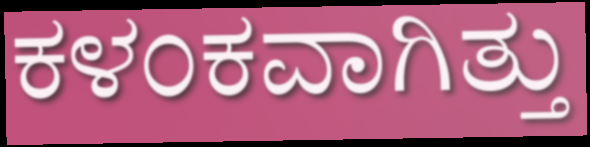
ಕಳಂಕವಾಗಿತ್ತು